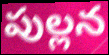
పుల్లన